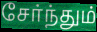
சேர்ந்தும்